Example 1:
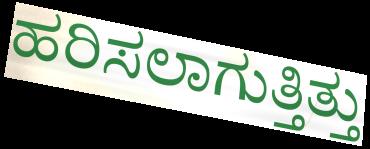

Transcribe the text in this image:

ಹರಿಸಲಾಗುತ್ತಿತ್ತು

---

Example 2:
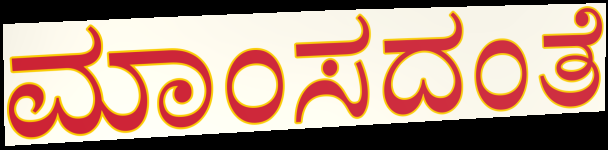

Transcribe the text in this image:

ಮಾಂಸದಂತೆ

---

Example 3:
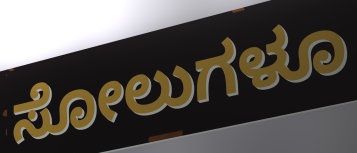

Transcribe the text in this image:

ಸೋಲುಗಳೂ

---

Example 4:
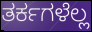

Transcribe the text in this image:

ತರ್ಕಗಳೆಲ್ಲ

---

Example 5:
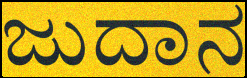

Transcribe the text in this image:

ಜುದಾನ